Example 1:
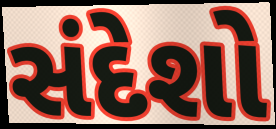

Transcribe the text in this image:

સંદેશો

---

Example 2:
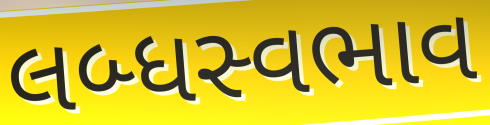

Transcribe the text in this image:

લબ્ધસ્વભાવ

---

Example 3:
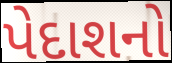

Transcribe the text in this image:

પેદાશનો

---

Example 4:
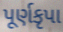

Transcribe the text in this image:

પૂર્ણકૃપા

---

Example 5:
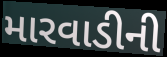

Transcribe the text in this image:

મારવાડીની